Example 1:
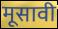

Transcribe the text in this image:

मूसावी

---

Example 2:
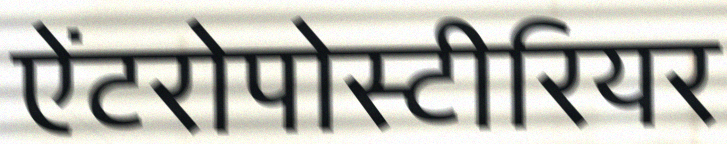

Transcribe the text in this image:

ऐंटरोपोस्टीरियर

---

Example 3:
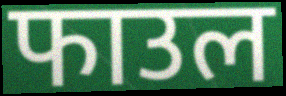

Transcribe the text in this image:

फाउल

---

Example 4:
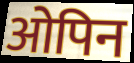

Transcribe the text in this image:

ओपिन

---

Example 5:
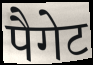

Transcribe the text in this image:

पैगेट